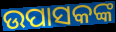
ଉପାସକଙ୍କ